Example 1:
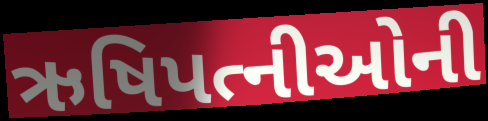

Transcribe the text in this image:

ઋષિપત્નીઓની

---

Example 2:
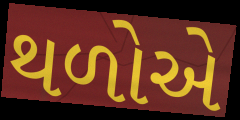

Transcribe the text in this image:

થળોએ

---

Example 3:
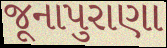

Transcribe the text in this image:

જૂનાપુરાણા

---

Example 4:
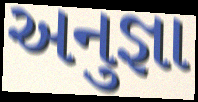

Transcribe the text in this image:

અનુજ્ઞા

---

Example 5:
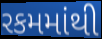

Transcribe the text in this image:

રકમમાંથી